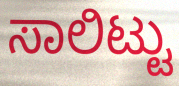
ಸಾಲಿಟ್ಟು